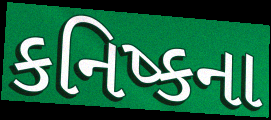
કનિષ્કના